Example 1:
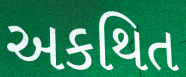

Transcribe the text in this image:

અકથિત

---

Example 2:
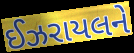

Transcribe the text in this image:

ઈઝરાયલને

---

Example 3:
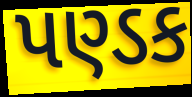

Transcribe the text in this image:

પણ્ડક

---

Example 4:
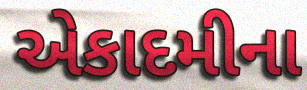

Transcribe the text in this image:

એકાદમીના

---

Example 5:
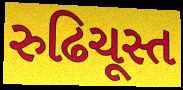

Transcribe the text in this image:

રુઢિચૂસ્ત